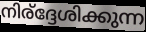
നിര്ദ്ദേശിക്കുന്ന